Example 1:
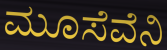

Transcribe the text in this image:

ಮೂಸೆವೆನಿ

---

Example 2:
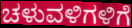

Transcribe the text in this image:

ಚಳುವಳಿಗಳಿಗೆ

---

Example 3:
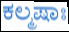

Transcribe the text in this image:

ಕಲ್ಮಷಾಃ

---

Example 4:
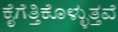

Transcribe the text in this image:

ಕೈಗೆತ್ತಿಕೊಳ್ಳುತ್ತವೆ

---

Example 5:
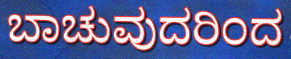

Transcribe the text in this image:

ಬಾಚುವುದರಿಂದ